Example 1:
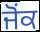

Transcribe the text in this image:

ਜੋਂਕ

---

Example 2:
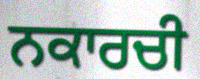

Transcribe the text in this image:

ਨਕਾਰਚੀ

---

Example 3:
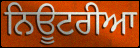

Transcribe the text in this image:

ਨਿਊਟਰੀਆ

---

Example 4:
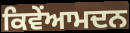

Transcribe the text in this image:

ਕਿਵੇਂਆਮਦਨ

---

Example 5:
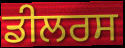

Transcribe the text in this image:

ਡੀਲਰਸ